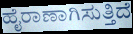
ಹೈರಾಣಾಗಿಸುತ್ತಿದೆ